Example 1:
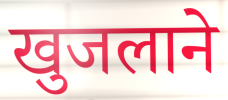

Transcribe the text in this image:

खुजलाने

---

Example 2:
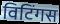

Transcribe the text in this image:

विटिंगस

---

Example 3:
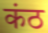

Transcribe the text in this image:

कंठ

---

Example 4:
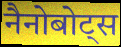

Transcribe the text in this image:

नैनोबोट्स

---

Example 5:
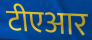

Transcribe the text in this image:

टीएआर